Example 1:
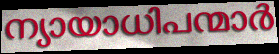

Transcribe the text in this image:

ന്യായാധിപന്മാർ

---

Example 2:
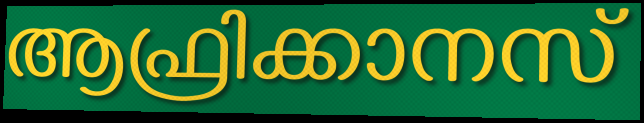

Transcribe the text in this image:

ആഫ്രിക്കാനസ്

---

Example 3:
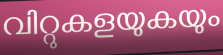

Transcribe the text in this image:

വിറ്റുകളയുകയും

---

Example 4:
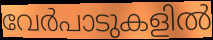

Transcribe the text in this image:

വേർപാടുകളിൽ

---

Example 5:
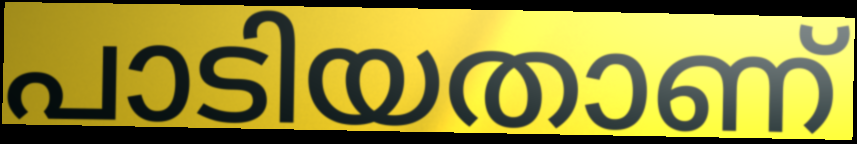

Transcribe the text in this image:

പാടിയതാണ്